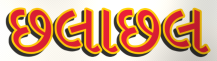
છલાછલ